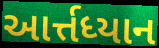
આર્ત્તધ્યાન